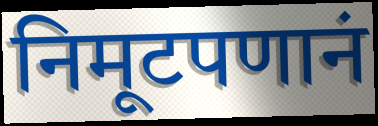
निमूटपणानं